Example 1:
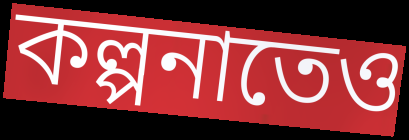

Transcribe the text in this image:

কল্পনাতেও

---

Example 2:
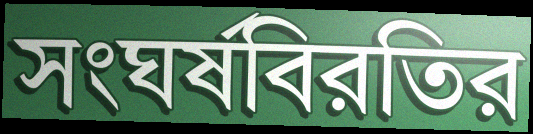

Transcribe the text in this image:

সংঘর্ষবিরতির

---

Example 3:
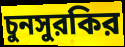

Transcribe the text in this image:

চুনসুরকির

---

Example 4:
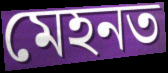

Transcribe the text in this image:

মেহনত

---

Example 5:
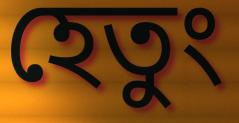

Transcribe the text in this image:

হেতুং